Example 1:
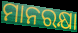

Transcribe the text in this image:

ମାନରକ୍ଷା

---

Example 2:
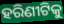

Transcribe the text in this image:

ହରିଣୀଟିକୁ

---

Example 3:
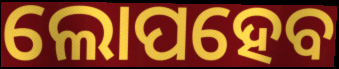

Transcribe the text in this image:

ଲୋପହେବ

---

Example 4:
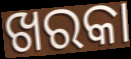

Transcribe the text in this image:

ଖରକା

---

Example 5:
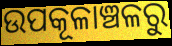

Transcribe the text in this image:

ଉପକୂଳାଞ୍ଚଳରୁ